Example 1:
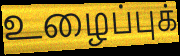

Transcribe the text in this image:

உழைப்புக்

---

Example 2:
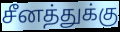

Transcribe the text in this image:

சீனத்துக்கு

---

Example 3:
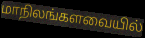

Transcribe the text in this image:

மாநிலங்களவையில்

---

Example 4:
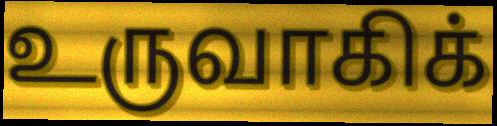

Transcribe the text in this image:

உருவாகிக்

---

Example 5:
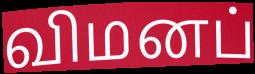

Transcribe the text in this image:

விமனப்